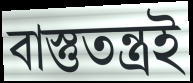
বাস্তুতন্ত্রই